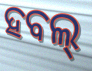
ହବଲ୍